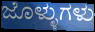
ಜೊಳ್ಳುಗಳು